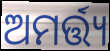
ଅମର୍ତ୍ତ୍ୟ